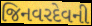
જિનવરદેવની